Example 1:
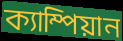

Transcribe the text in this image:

ক্যাম্পিয়ান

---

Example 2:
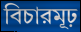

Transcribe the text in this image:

বিচারমূঢ়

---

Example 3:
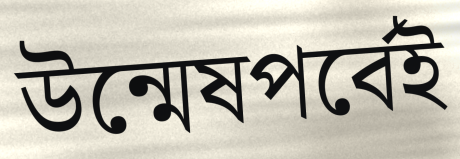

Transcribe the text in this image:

উন্মেষপর্বেই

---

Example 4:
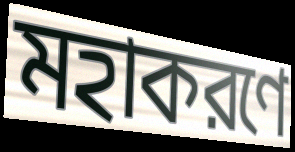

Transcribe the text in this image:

মহাকরণে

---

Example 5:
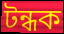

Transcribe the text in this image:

টন্ধক